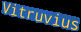
Vitruvius